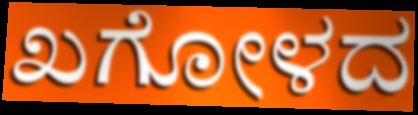
ಖಗೋಳದ